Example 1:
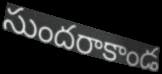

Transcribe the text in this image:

సుందరాకాండ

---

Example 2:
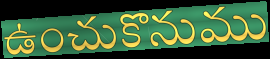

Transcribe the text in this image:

ఉంచుకొనుము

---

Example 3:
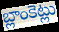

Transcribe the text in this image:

బ్లాంకెట్లు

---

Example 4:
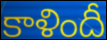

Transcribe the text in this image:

కాళిందీ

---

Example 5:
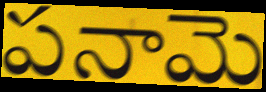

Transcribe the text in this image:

పనామె